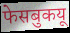
फेसबुकयू